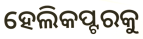
ହେଲିକପ୍ଟରକୁ